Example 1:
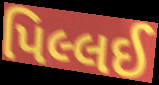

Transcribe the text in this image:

પિલ્લઈ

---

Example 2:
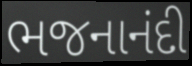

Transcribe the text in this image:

ભજનાનંદી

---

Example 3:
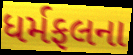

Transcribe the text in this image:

ધર્મફલના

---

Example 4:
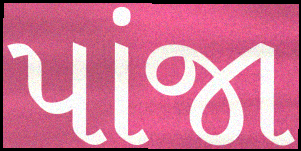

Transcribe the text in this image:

પાંજા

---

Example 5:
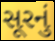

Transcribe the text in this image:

સૂરનું